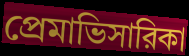
প্রেমাভিসারিকা